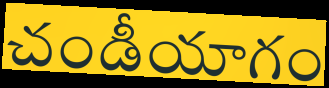
చండీయాగం